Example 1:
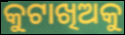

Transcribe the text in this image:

କୁଟାଖିଅକୁ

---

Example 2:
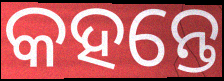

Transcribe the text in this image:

କହନ୍ତେ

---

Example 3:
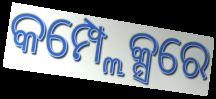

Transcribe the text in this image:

କମ୍ପ୍ଲେକ୍ସରେ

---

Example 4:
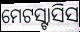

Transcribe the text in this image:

ମେଟସ୍ଟାସିସ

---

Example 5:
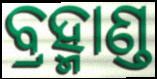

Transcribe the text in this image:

ବ୍ରହ୍ମାଣ୍ଡ